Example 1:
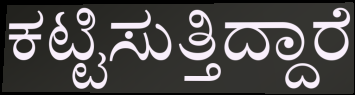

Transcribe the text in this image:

ಕಟ್ಟಿಸುತ್ತಿದ್ದಾರೆ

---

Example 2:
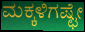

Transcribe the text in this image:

ಮಕ್ಕಳಿಗಷ್ಟೇ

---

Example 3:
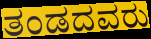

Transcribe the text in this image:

ತಂಡದವರು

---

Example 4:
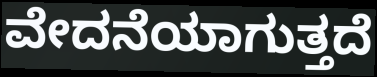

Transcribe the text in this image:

ವೇದನೆಯಾಗುತ್ತದೆ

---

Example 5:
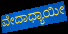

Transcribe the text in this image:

ವೇದಾಧ್ಯಾಯೀ